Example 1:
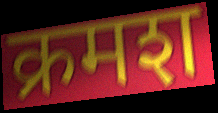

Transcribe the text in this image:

क्रमश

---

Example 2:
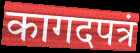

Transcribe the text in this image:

कागदपत्रं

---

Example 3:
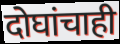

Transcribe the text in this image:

दोघांचाही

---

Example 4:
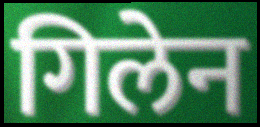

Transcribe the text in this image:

गिलेन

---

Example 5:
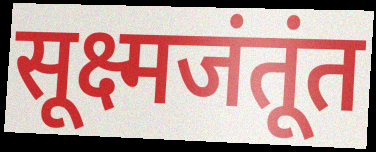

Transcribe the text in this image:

सूक्ष्मजंतूंत